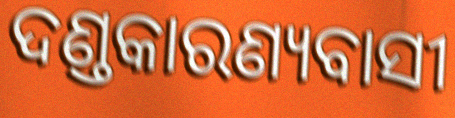
ଦଣ୍ଡକାରଣ୍ୟବାସୀ